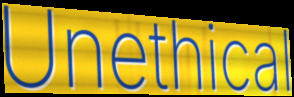
Unethical